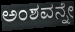
ಅಂಶವನ್ನೇ